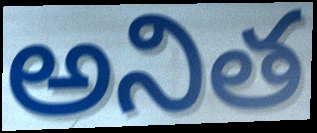
అనిత